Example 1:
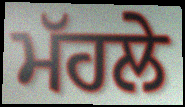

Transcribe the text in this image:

ਮੱਹਲੇ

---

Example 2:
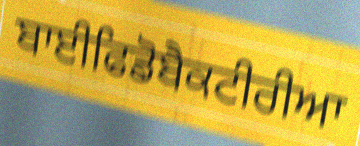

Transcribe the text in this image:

ਬਾਈਫਿਡੋਬੈਕਟੀਰੀਆ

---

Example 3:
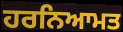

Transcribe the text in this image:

ਹਰਨਿਆਮਤ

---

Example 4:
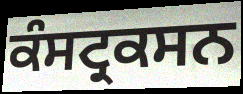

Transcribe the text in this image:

ਕੰਸਟ੍ਰਕਸਨ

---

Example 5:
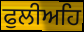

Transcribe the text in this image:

ਫੁਲੀਅਹਿ